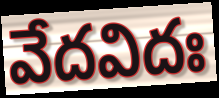
వేదవిదః